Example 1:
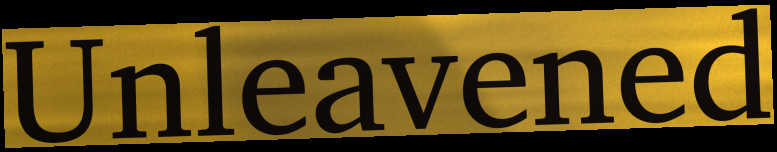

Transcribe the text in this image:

Unleavened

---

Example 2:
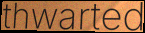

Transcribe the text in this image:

thwarted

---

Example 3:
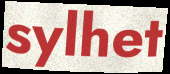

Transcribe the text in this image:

sylhet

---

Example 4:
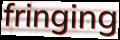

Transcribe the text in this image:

fringing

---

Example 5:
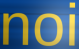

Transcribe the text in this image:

noi